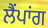
ਲੈਂਪਾਂਗ